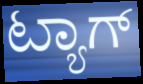
ಟ್ಯಾಗ್